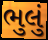
ભુલું